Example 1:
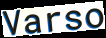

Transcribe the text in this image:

Varso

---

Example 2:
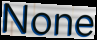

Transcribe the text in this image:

None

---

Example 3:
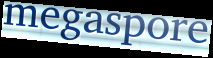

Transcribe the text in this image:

megaspore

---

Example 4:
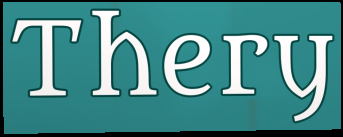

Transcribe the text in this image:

Thery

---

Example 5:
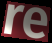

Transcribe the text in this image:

re